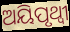
ଅୟିପୃଥ୍ୱୀ